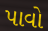
પાવો